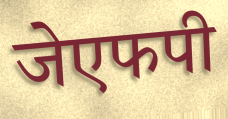
जेएफपी